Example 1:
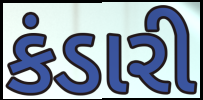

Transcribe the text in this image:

કંડારી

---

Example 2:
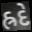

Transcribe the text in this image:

હ્રદે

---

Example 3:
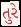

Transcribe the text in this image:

તુરે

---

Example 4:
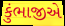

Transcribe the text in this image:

કુંભાજીએ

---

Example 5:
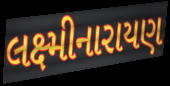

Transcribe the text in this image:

લક્ષ્મીનારાયણ